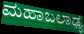
ಮಹಾಬಲಾಢ್ಯ